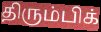
திரும்பிக்